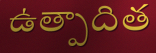
ఉత్పాదిత